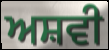
ਅਸ਼ਵੀ